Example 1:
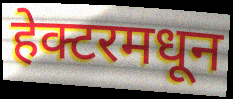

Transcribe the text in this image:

हेक्टरमधून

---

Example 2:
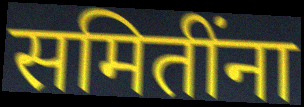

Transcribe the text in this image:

समितींना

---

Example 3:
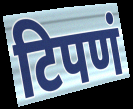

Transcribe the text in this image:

टिपणं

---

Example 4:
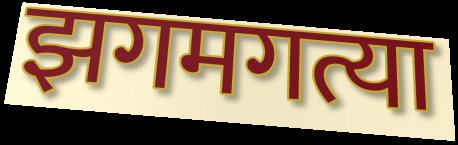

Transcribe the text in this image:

झगमगत्या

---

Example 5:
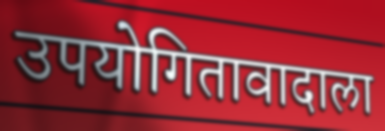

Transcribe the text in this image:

उपयोगितावादाला